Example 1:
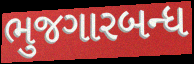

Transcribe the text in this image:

ભુજગારબન્ધ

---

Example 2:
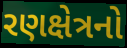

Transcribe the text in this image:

રણક્ષેત્રનો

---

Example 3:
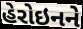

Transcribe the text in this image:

હેરોઇનને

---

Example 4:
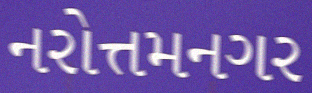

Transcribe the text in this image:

નરોત્તમનગર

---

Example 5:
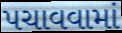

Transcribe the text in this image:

પચાવવામાં